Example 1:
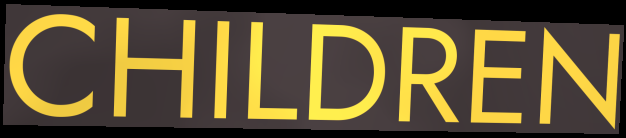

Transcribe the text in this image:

CHILDREN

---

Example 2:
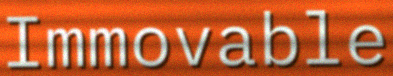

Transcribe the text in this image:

Immovable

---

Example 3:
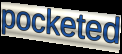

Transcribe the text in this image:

pocketed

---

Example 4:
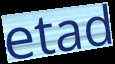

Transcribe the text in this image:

etad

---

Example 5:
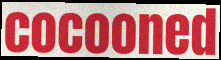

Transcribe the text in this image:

cocooned